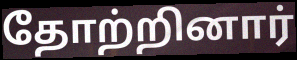
தோற்றினார்